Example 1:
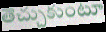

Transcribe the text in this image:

తెచ్చుకుంటూ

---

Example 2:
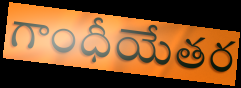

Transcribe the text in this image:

గాంధీయేతర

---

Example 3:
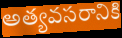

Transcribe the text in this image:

అత్యవసరానికి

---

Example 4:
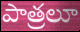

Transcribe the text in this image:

పాత్రలూ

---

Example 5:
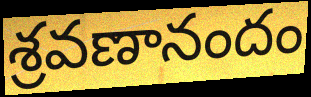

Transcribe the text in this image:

శ్రవణానందం